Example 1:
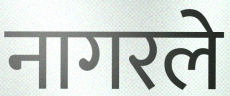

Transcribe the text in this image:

नागरले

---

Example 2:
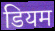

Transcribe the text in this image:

डियम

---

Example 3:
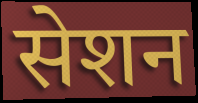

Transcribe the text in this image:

सेशन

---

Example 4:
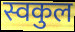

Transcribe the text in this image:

स्वकुल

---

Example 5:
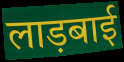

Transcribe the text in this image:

लाड़बाई